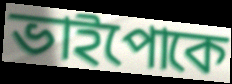
ভাইপোকে